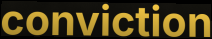
conviction